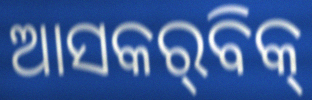
ଆସକର୍‌ବିକ୍